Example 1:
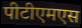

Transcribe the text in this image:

पीटीएमएस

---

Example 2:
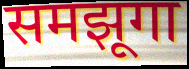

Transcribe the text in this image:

समझूगा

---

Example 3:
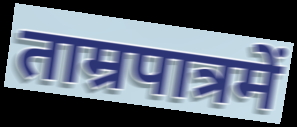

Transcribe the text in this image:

ताम्रपात्रमें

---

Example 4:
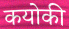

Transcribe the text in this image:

कयोकी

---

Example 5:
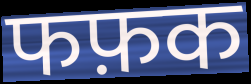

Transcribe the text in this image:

फफ़क